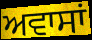
ਅਵਾਸਾਂ